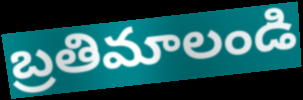
బ్రతిమాలండి